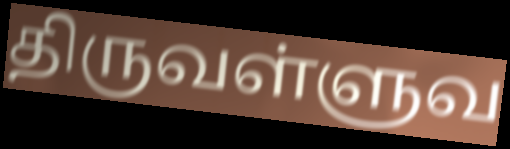
திருவள்ளுவ